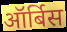
ऑर्बिस